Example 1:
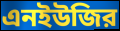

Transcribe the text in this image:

এনইউজির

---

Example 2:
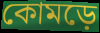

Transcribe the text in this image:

কোমড়ে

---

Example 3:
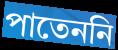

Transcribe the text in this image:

পাতেননি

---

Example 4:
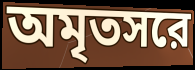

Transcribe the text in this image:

অমৃতসরে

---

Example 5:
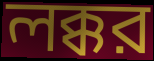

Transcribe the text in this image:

লক্কর